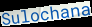
Sulochana